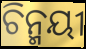
ଚିନ୍ମୟୀ